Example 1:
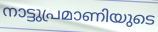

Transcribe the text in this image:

നാട്ടുപ്രമാണിയുടെ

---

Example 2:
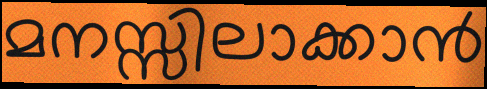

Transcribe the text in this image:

മനസ്സിലാക്കാൻ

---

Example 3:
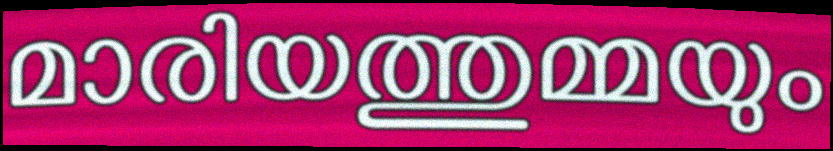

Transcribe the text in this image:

മാരിയത്തുമ്മയും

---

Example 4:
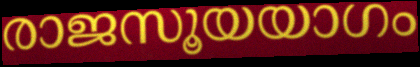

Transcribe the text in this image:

രാജസൂയയാഗം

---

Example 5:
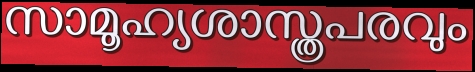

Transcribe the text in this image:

സാമൂഹ്യശാസ്ത്രപരവും